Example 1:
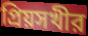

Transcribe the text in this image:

প্রিয়সখীর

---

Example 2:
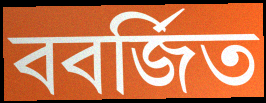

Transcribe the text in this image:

ববর্জিত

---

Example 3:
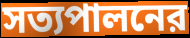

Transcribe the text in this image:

সত্যপালনের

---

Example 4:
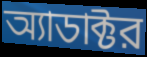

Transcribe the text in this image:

অ্যাডাক্টর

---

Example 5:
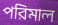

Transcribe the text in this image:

পরিমাল